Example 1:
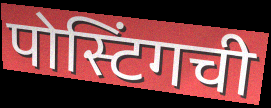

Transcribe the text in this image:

पोस्टिंगची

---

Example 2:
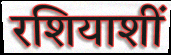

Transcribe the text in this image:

रशियाशीं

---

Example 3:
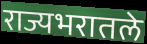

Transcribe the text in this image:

राज्यभरातले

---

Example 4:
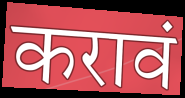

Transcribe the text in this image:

करावं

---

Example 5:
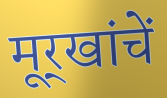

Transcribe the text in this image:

मूर्खांचें